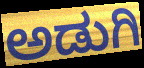
ಅಡುಗಿ